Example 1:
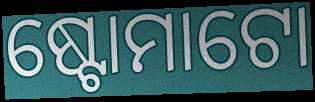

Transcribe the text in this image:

ଷ୍ଟୋମାଟୋ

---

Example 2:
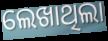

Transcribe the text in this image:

ଲେଖାଥିଲା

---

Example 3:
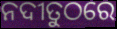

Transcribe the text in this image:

ନଦୀତୁଠରେ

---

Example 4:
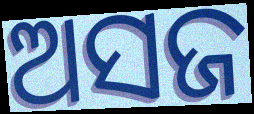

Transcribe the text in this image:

ଅସଜ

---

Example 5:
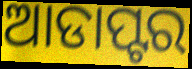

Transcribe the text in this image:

ଆଡାପ୍ଟର